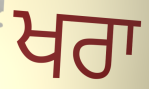
ਖਰਾ